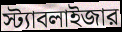
স্ট্যাবলাইজার